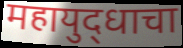
महायुद्धाचा